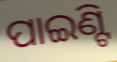
ପାଇଣ୍ଟି